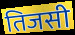
तिजसी